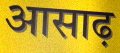
आसाढ़